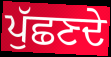
ਪੁੱਛਣਦੇ